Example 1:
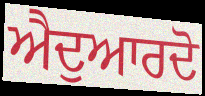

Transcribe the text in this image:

ਐਦੁਆਰਦੋ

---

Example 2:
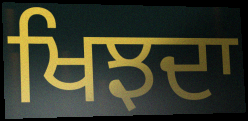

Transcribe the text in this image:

ਖਿਝਦਾ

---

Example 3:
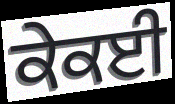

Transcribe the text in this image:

ਕੇਕਈ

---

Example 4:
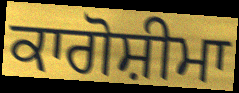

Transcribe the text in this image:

ਕਾਗੋਸ਼ੀਮਾ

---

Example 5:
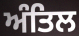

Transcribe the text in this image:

ਅੰਤਿਲ